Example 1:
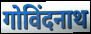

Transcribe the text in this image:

गोविंदनाथ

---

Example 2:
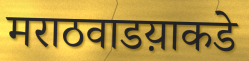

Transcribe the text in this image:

मराठवाडय़ाकडे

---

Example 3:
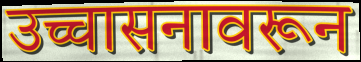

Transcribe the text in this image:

उच्चासनावरून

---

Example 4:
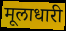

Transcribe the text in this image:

मूलाधारी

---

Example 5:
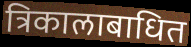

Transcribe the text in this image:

त्रिकालाबाधित